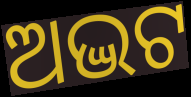
ଅଦ୍ଭଟ